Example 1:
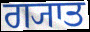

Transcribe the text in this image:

ਗ੍ਯਾਤ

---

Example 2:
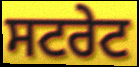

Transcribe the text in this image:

ਸਟਰੇਟ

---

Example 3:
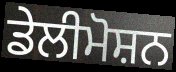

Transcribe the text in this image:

ਡੇਲੀਮੋਸ਼ਨ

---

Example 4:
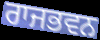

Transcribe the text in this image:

ਰਾਜਭਵਨ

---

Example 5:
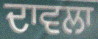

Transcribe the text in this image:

ਦਾਵਲਾ